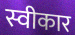
स्‍वीकार